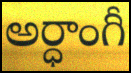
అర్ధాంగీ